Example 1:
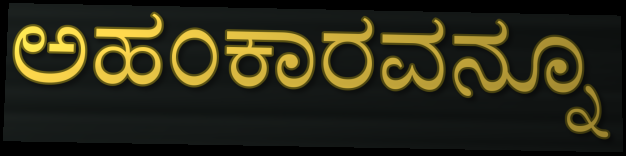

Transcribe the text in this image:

ಅಹಂಕಾರವನ್ನೂ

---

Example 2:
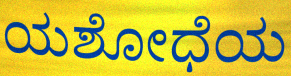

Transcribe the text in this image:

ಯಶೋಧೆಯ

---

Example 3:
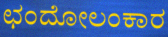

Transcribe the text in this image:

ಛಂದೋಲಂಕಾರ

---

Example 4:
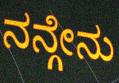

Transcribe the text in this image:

ನನ್ಗೇನು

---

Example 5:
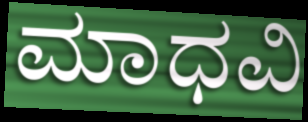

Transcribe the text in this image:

ಮಾಧವಿ